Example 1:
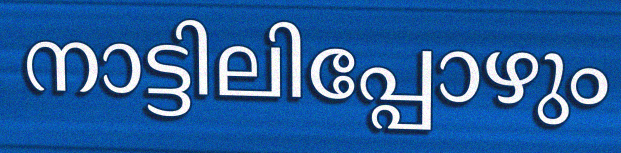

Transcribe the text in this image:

നാട്ടിലിപ്പോഴും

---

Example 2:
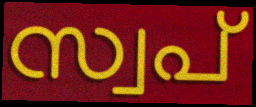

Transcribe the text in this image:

സ്വപ്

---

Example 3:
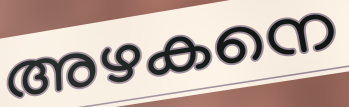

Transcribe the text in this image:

അഴകനെ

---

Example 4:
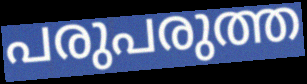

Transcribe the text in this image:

പരുപരുത്ത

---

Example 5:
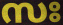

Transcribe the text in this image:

സഃ